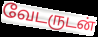
வேடருடன்